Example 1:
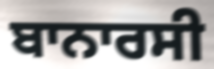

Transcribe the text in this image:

ਬਾਨਾਰਸੀ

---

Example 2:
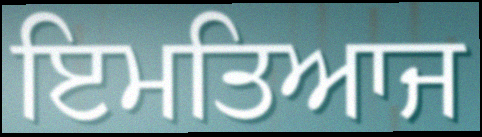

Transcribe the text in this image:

ਇਮਤਿਆਜ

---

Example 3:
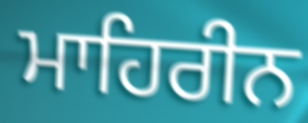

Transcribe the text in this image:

ਮਾਹਿਰੀਨ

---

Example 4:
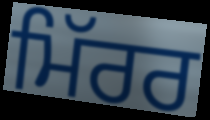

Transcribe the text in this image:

ਮਿੱਰਰ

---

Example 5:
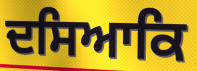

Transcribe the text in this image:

ਦਸਿਆਕਿ